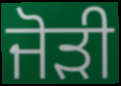
ਜੋੜੀ